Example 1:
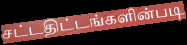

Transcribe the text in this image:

சட்டதிட்டங்களின்படி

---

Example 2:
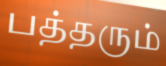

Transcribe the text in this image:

பத்தரும்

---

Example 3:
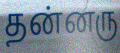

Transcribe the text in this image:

தன்னரு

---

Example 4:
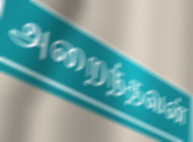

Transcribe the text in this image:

அறைந்தவன்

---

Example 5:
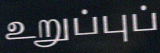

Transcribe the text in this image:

உறுப்புப்